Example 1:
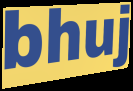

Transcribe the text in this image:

bhuj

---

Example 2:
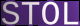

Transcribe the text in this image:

STOL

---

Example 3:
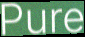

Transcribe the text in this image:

Pure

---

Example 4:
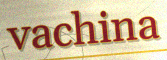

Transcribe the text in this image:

vachina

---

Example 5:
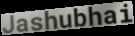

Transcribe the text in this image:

Jashubhai